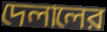
দেলালের